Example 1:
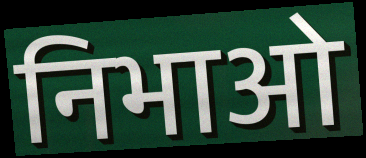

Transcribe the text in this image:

निभाओ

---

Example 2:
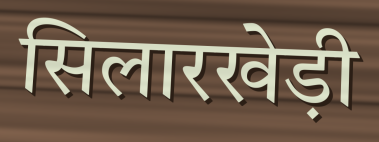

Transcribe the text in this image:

सिलारखेड़ी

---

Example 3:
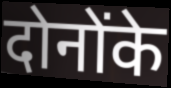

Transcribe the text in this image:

दोनोंके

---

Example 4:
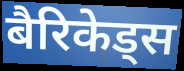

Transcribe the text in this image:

बैरिकेड्स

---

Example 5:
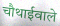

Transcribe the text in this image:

चौथाईवाले